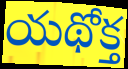
యథోక్త